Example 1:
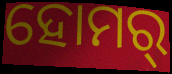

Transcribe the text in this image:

ହୋମର୍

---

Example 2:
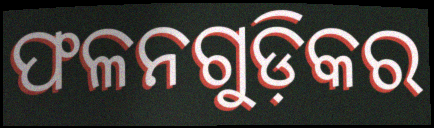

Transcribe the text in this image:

ଫଳନଗୁଡ଼ିକର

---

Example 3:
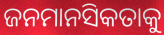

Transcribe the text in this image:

ଜନମାନସିକତାକୁ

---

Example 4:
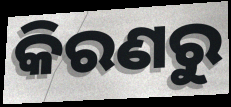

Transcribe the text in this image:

କିରଣରୁ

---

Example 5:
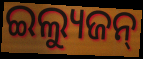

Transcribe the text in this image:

ଇଲ୍ୟୁଜନ୍